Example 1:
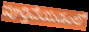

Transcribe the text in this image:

పూర్తిచేయడంలో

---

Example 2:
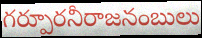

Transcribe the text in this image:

గర్పూరనీరాజనంబులు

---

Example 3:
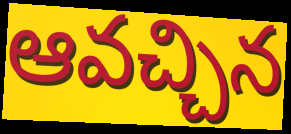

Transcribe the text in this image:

ఆవచ్చిన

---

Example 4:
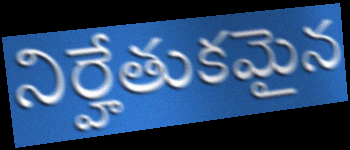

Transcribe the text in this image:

నిర్హేతుకమైన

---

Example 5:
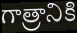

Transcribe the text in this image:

గాత్రానికి